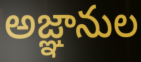
అజ్ఞానుల